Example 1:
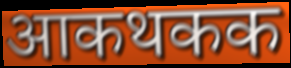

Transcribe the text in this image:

आकथकक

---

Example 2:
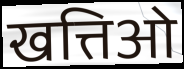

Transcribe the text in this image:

खत्तिओ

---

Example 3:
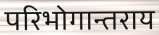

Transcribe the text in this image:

परिभोगान्तराय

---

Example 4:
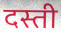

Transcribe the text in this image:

दस्ती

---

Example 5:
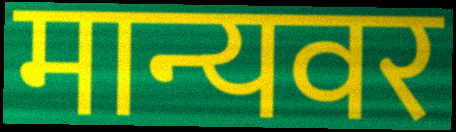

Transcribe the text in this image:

मान्‍यवर